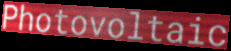
Photovoltaic